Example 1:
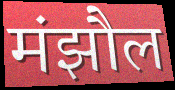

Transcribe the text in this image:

मंझौल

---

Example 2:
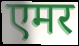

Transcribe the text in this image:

एमर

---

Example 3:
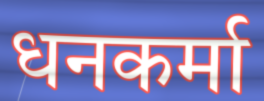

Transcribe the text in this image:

धनकर्मा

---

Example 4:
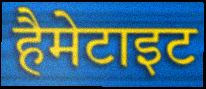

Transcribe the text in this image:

हैमेटाइट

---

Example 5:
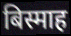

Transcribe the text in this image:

बिस्माह